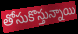
తోసుకొస్తున్నాయి